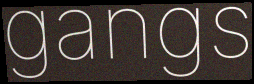
gangs